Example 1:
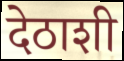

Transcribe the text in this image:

देठाशी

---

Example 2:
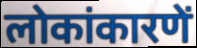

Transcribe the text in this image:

लोकांकारणें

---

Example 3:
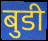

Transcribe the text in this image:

बुडी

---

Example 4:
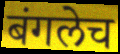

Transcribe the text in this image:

बंगलेच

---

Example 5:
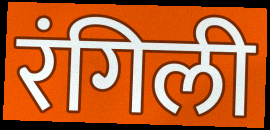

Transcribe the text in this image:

रंगिली